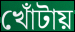
খোঁটায়